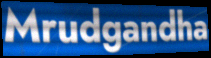
Mrudgandha